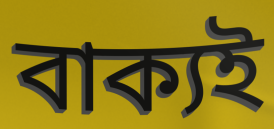
বাক্যই